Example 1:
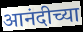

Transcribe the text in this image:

आनंदीच्या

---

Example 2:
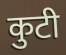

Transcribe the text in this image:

कुटी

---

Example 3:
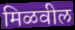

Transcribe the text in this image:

मिळवील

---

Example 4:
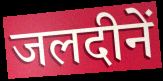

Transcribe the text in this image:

जलदीनें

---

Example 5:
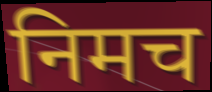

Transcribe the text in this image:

निमच